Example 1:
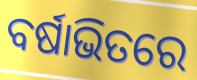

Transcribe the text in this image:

ବର୍ଷାଭିତରେ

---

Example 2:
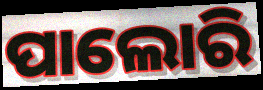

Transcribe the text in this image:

ପାଲୋରି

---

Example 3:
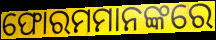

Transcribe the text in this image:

ଫୋରମମାନଙ୍କରେ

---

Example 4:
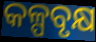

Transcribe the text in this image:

କଳ୍ପବୃକ୍ଷ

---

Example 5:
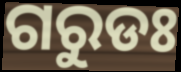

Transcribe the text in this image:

ଗରୁଡଃ